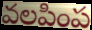
వలపింప